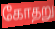
கோதறு